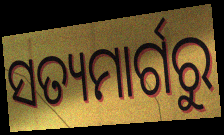
ସତ୍ୟମାର୍ଗରୁ